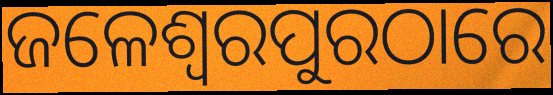
ଜଳେଶ୍ୱରପୁରଠାରେ